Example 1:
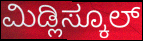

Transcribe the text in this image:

ಮಿಡ್ಲಿಸ್ಕೂಲ್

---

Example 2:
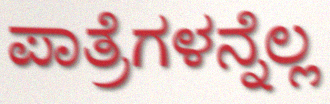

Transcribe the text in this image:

ಪಾತ್ರೆಗಳನ್ನೆಲ್ಲ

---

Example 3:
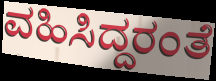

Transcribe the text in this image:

ವಹಿಸಿದ್ದರಂತೆ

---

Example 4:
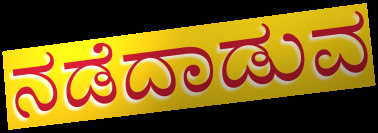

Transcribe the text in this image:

ನಡೆದಾಡುವ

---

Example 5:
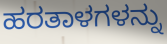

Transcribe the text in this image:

ಹರತಾಳಗಳನ್ನು